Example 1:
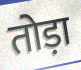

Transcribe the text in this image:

तोड़ा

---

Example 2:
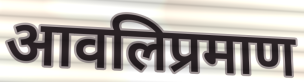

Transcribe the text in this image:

आवलिप्रमाण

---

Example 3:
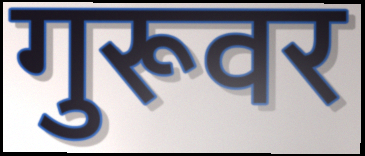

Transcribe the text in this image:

गुरूवर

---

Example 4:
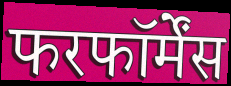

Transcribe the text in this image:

फरफॉर्मेंस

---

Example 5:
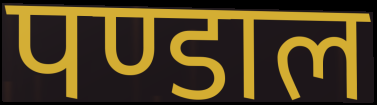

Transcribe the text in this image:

पण्डाल